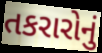
તકરારોનું